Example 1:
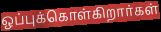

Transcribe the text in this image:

ஒப்புக்கொள்கிறார்கள்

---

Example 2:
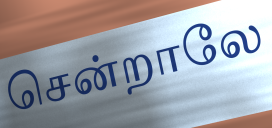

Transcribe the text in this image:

சென்றாலே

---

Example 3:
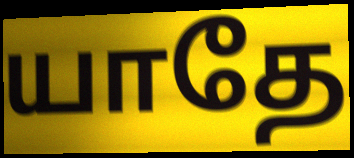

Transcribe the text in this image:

யாதே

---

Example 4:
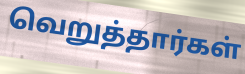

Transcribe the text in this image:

வெறுத்தார்கள்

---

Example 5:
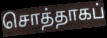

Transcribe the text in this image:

சொத்தாகப்